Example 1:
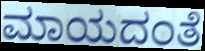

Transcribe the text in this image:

ಮಾಯದಂತೆ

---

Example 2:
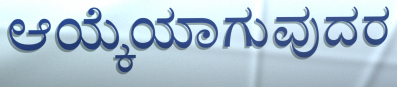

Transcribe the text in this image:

ಆಯ್ಕೆಯಾಗುವುದರ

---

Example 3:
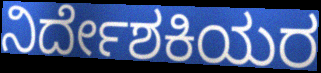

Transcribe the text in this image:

ನಿರ್ದೇಶಕಿಯರ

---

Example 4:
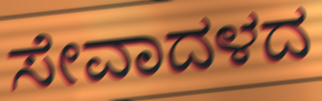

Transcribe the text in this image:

ಸೇವಾದಳದ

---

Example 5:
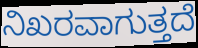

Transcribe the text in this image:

ನಿಖರವಾಗುತ್ತದೆ